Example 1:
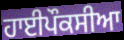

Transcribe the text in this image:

ਹਾਈਪੌਕਸੀਆ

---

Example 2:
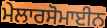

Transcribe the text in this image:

ਮੇਲਾਰਸੋਮਾਈਨ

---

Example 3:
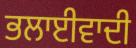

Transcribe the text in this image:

ਭਲਾਈਵਾਦੀ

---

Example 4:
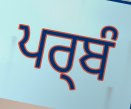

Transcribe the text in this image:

ਪਰ੍ਬੰ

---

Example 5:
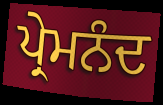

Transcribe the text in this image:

ਪ੍ਰੇਮਨੰਦ